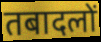
तबादलों